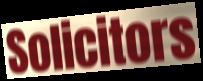
Solicitors